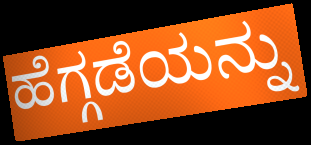
ಹೆಗ್ಗಡೆಯನ್ನು